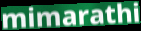
mimarathi